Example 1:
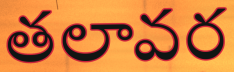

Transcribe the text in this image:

తలావర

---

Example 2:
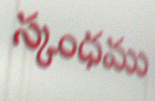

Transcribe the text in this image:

స్కంధము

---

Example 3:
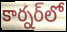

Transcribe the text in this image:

కార్నర్‌లో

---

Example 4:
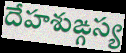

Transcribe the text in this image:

దేహశుఙ్గస్య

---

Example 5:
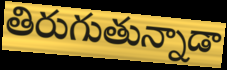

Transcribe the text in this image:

తిరుగుతున్నాడా